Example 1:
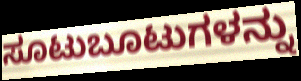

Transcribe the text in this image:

ಸೂಟುಬೂಟುಗಳನ್ನು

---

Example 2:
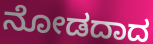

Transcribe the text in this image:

ನೋಡದಾದ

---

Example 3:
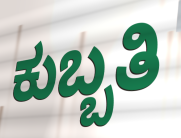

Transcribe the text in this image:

ಕುಬ್ಬತಿ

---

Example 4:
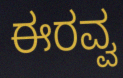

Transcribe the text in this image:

ಈರವ್ವ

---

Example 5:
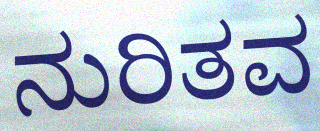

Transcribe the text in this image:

ನುರಿತವ